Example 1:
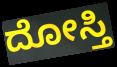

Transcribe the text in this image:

ದೋಸ್ತಿ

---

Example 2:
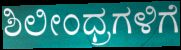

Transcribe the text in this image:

ಶಿಲೀಂಧ್ರಗಳಿಗೆ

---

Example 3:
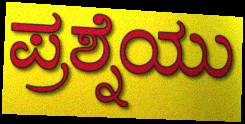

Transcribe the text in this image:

ಪ್ರಶ್ನೆಯು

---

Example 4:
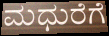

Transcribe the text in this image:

ಮಧುರೆಗೆ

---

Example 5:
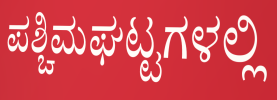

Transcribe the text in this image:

ಪಶ್ಚಿಮಘಟ್ಟಗಳಲ್ಲಿ